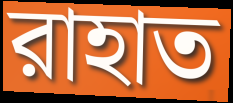
রাহাত